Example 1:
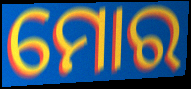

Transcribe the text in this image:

ମୋର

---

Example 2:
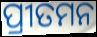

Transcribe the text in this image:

ପ୍ରୀତମନ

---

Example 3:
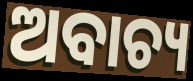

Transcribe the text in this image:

ଅବାଚ୍ୟ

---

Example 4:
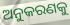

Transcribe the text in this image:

ଅନୁକରଣକୁ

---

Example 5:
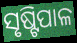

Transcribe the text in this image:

ସୃଷ୍ଟିପାଳ